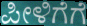
ಪೀಳಿಗೆಗೆ